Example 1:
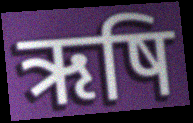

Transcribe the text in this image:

ॠषि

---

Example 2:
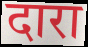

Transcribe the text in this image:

दारा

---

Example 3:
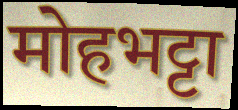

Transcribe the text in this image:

मोहभट्टा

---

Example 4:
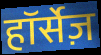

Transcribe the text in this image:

हॉर्सेज़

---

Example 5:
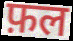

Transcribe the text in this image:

फ़ल